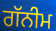
ਗੱਨੀਮ